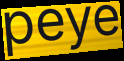
peye